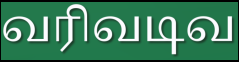
வரிவடிவ